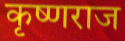
कृष्णराज